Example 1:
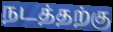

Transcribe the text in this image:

நடத்தற்கு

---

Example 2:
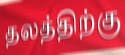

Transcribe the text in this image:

தலத்திற்கு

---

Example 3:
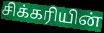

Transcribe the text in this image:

சிக்கரியின்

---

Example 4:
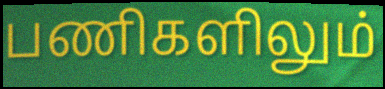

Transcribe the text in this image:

பணிகளிலும்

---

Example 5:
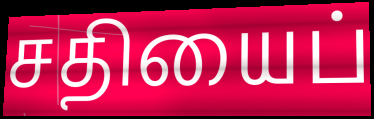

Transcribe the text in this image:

சதியைப்